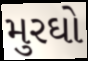
મુરઘો